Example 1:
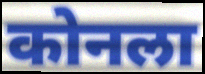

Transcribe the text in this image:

कोनला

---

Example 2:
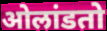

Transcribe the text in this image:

ओलांडतो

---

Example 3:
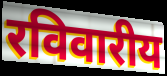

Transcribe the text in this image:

रविवारीय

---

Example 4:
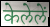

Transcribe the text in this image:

केलेलें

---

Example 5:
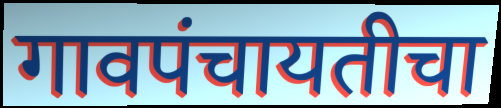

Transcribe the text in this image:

गावपंचायतीचा